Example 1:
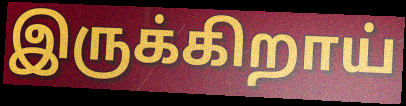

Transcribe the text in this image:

இருக்கிறாய்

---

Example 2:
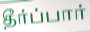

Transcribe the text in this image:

தீர்ப்பார்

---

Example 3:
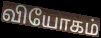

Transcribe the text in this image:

வியோகம்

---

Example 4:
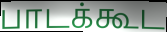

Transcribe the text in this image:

பாடக்கூட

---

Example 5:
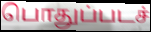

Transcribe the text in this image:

பொதுப்படச்